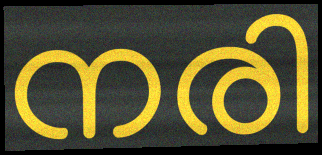
നരി